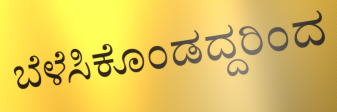
ಬೆಳೆಸಿಕೊಂಡದ್ದರಿಂದ